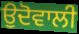
ਉਦੋਵਾਲੀ